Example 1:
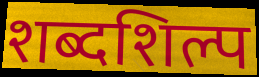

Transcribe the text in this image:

शब्दशिल्प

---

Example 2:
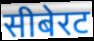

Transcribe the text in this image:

सीबेरट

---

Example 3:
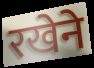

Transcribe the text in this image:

रखेने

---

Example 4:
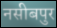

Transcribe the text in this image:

नसीबपुर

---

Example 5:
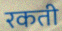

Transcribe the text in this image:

रकती